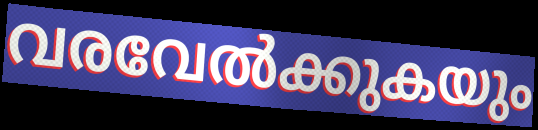
വരവേൽക്കുകയും